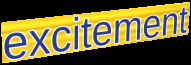
excitement